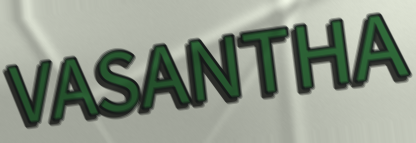
VASANTHA